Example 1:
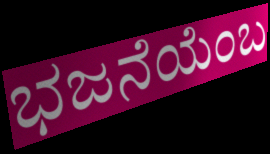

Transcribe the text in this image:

ಭಜನೆಯೆಂಬ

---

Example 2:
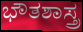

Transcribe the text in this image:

ಭೌತಶಾಸ್ತ್ರ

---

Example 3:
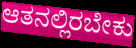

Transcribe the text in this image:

ಆತನಲ್ಲಿರಬೇಕು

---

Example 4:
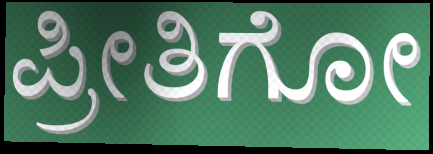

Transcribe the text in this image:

ಪ್ರೀತಿಗೋ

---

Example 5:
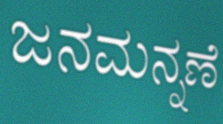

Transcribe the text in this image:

ಜನಮನ್ನಣೆ